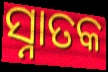
ସ୍ନାତକ